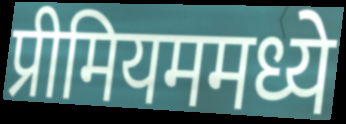
प्रीमियममध्ये